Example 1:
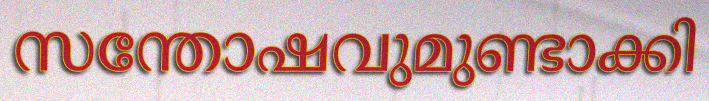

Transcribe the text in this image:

സന്തോഷവുമുണ്ടാക്കി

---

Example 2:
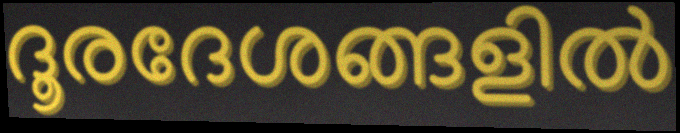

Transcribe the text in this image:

ദൂരദേശങ്ങളിൽ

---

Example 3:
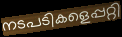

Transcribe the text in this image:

നടപടികളെപ്പറ്റി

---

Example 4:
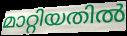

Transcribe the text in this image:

മാറ്റിയതിൽ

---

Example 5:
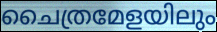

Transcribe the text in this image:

ചൈത്രമേളയിലും